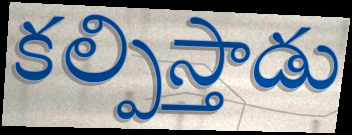
కల్పిస్తాడు